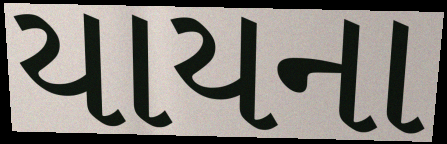
યાયના